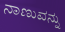
ನಾಣುವನ್ನು